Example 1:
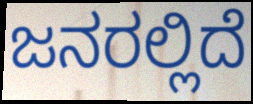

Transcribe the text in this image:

ಜನರಲ್ಲಿದೆ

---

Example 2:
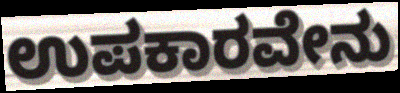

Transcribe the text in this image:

ಉಪಕಾರವೇನು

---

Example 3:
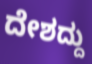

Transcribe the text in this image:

ದೇಶದ್ದು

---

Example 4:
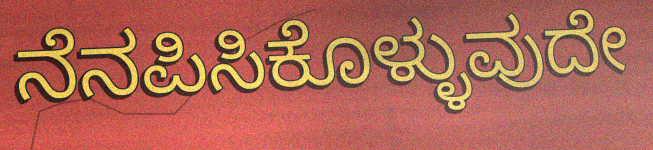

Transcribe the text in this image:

ನೆನಪಿಸಿಕೊಳ್ಳುವುದೇ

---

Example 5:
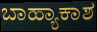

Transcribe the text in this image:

ಬಾಹ್ಯಾಕಾಶ